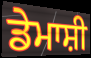
ਡੇਮਾਸ਼ੀ